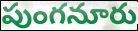
పుంగనూరు